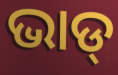
ଭାଡ୍